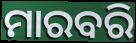
ମାରବରି